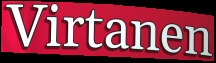
Virtanen